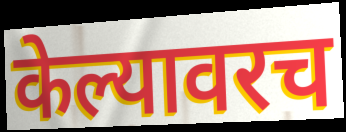
केल्यावरच